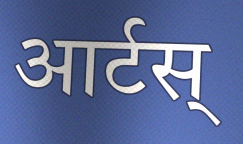
आर्टस्